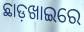
ଛାଡ଼ଖାଇରେ